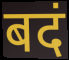
बदं